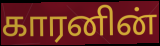
காரனின்